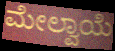
ಮೇಲ್ವಾಯೆ